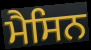
ਮੈਸਿਨ